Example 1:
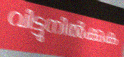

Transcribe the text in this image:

വിട്ടുനിൽക്കുക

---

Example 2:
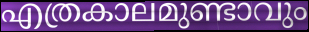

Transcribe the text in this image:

എത്രകാലമുണ്ടാവും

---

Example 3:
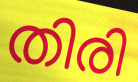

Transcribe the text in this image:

തിരി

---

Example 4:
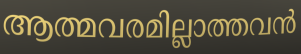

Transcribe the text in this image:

ആത്മവരമില്ലാത്തവൻ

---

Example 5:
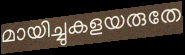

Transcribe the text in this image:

മായിച്ചുകളയരുതേ